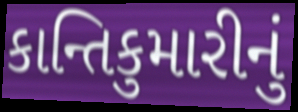
કાન્તિકુમારીનું